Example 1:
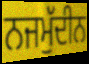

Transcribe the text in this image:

ਨਜਮੁੱਦੀਨ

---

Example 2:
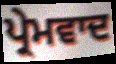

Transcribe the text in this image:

ਪ੍ਰੇਮਵਾਦ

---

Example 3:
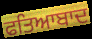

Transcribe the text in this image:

ਫਤਿਆਬਾਦ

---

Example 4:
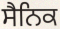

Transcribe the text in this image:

ਸੈਨਿਕ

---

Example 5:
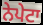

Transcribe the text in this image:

ਨੇਪੇਟਾ